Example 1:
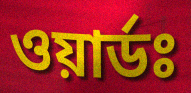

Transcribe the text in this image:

ওয়ার্ডঃ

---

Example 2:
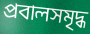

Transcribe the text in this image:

প্রবালসমৃদ্ধ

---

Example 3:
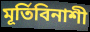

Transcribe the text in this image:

মূর্তিবিনাশী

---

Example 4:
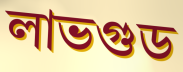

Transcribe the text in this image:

লাভগুড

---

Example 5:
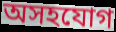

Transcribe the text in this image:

অসহযোগ